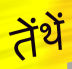
तेंथें